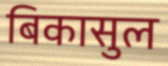
बिकासुल